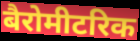
बैरोमीटरिक